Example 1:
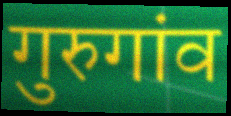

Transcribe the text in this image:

गुरुगांव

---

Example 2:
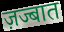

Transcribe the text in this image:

ज़ज्बात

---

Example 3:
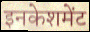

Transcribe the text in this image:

इनकेशमेंट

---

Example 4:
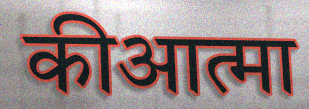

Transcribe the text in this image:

कीआत्मा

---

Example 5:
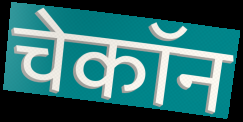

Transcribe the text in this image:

चेकॉन